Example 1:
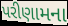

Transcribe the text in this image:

પરીણામના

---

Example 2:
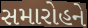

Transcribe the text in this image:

સમારોહને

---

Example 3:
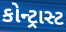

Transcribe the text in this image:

કોન્ટ્રાસ્ટ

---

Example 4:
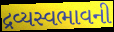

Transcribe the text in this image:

દ્રવ્યસ્વભાવની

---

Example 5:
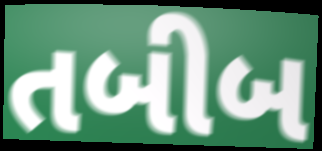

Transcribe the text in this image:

તબીબ